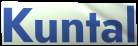
Kuntal